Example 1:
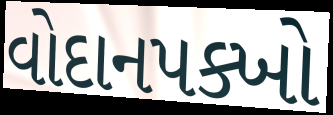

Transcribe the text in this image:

વોદાનપક્ખો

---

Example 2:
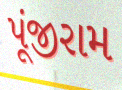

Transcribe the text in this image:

પૂંજીરામ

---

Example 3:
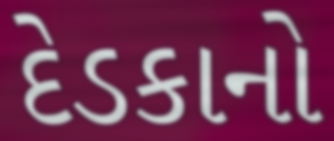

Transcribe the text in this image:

દેડકાનો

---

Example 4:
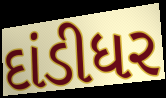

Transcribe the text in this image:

દાંડીધર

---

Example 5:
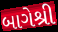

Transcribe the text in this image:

બાગેશ્રી